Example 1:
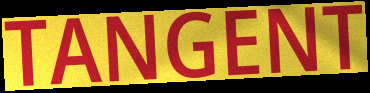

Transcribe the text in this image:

TANGENT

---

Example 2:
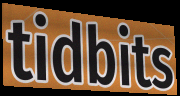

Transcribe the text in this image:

tidbits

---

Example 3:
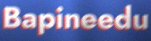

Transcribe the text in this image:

Bapineedu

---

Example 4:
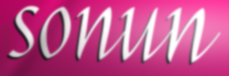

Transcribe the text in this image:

sonun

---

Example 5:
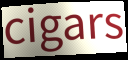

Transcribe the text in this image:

cigars